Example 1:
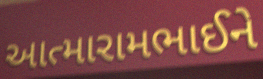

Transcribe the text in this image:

આત્મારામભાઈને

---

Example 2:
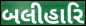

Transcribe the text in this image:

બલીહારિ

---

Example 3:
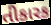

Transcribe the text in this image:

તીકારક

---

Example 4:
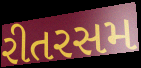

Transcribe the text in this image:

રીતરસમ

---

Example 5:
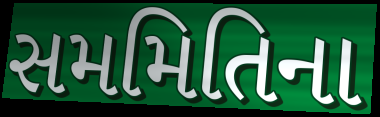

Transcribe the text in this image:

સમમિતિના